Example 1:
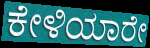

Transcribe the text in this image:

ಕೇಳಿಯಾರೇ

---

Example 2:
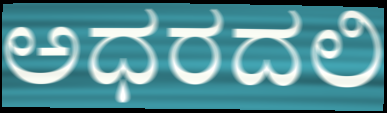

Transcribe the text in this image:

ಅಧರದಲಿ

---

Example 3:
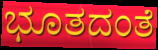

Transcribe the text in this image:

ಭೂತದಂತೆ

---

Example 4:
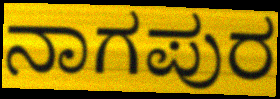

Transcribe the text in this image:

ನಾಗಪುರ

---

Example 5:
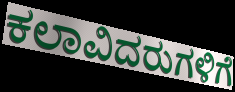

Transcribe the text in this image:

ಕಲಾವಿದರುಗಳಿಗೆ